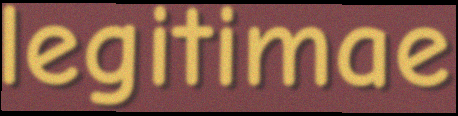
legitimae